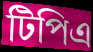
টিপিএ